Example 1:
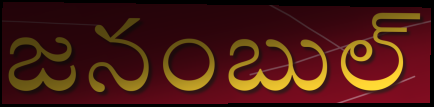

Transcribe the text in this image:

జనంబుల్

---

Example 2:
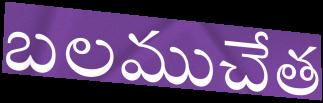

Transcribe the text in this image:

బలముచేత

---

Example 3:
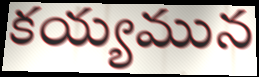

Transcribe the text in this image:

కయ్యమున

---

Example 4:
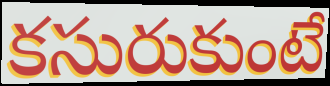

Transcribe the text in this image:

కసురుకుంటే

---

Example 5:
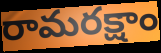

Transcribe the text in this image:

రామరక్షాం